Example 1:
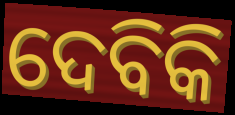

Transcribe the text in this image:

ଦେବିକି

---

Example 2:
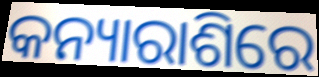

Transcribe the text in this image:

କନ୍ୟାରାଶିରେ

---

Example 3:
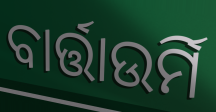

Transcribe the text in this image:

ବାର୍ତ୍ତାଉର୍ମି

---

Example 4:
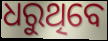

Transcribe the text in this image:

ଧରୁଥିବେ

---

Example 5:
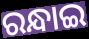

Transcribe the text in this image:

ରନ୍ଧାଇ